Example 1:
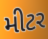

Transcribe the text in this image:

મીટર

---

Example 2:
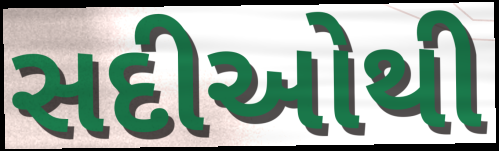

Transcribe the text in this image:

સદીઓથી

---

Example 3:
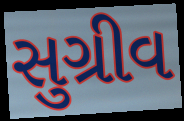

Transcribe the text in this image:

સુગ્રીવ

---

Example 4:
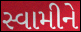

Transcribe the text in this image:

સ્વામીને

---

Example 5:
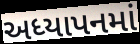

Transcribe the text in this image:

અધ્યાપનમાં